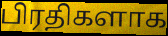
பிரதிகளாக